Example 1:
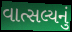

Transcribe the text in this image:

વાત્સલ્યનું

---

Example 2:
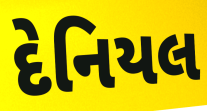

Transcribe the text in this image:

દેનિયલ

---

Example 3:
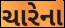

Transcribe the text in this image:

ચારેના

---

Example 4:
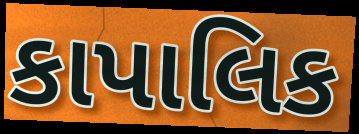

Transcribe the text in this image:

કાપાલિક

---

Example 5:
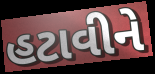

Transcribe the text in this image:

હટાવીને